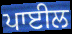
ਪਾਈਲ